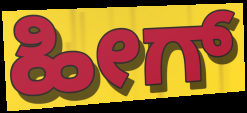
ಹೀಗ್